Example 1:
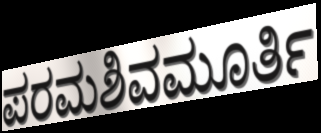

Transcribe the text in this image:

ಪರಮಶಿವಮೂರ್ತಿ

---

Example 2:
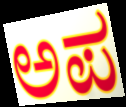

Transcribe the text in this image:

ಅಪ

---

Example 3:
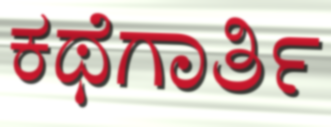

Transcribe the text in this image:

ಕಥೆಗಾರ್ತಿ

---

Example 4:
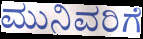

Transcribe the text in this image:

ಮುನಿವರಿಗೆ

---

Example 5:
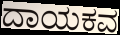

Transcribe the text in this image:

ದಾಯಕವ